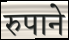
रुपाने